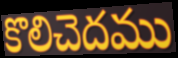
కొలిచెదము